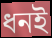
ধনই